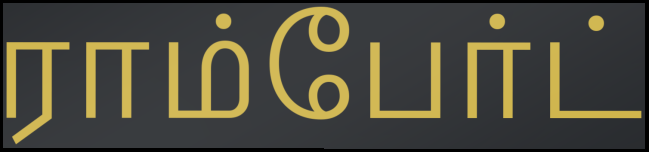
ராம்பேர்ட்